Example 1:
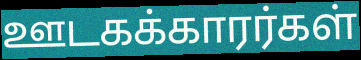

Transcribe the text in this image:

ஊடகக்காரர்கள்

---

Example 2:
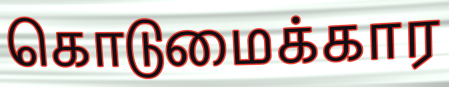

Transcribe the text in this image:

கொடுமைக்கார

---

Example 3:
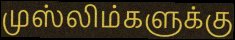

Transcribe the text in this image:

முஸ்லிம்களுக்கு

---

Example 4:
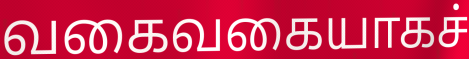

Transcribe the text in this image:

வகைவகையாகச்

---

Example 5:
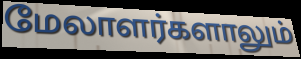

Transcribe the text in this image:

மேலாளர்களாலும்